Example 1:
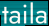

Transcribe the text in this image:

taila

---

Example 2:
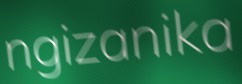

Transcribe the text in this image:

ngizanika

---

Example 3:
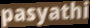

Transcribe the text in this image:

pasyathi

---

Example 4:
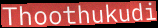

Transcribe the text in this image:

Thoothukudi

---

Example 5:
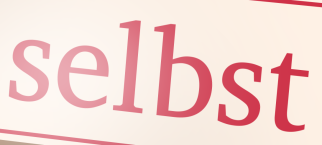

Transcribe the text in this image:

selbst